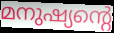
മനുഷ്യന്റെ